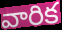
వారిక